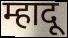
म्हादू